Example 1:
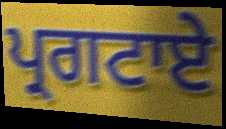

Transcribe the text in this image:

ਪ੍ਰਗਟਾਏ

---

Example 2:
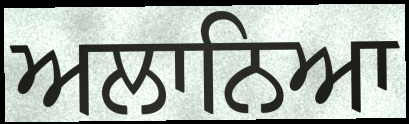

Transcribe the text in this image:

ਅਲਾਨਿਆ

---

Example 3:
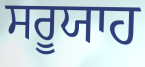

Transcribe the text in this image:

ਸਰੂਯਾਹ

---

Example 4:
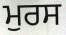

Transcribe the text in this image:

ਮੁਰਸ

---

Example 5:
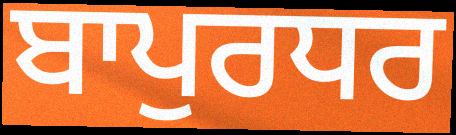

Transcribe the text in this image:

ਬਾਪੁਰਧਰ